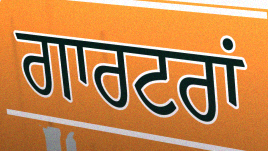
ਗਾਰਟਰਾਂ